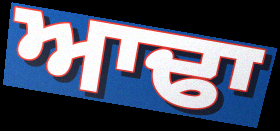
ਆਢਾ